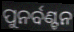
ପୁନର୍ବଣ୍ଟନ